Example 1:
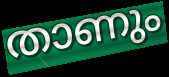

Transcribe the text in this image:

താണും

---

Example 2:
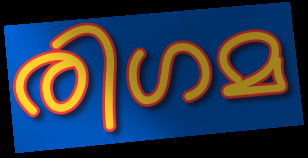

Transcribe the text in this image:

രിഗമ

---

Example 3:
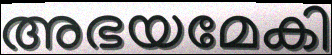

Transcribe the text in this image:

അഭയമേകി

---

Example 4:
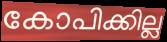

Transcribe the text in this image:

കോപിക്കില്ല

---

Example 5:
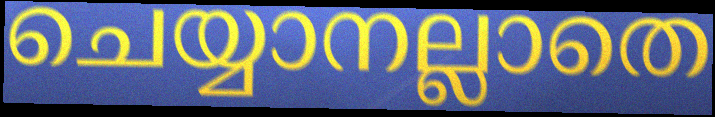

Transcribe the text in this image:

ചെയ്യാനല്ലാതെ